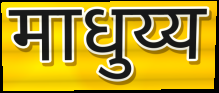
माधुय्य